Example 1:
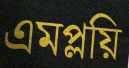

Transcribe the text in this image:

এমপ্লয়ি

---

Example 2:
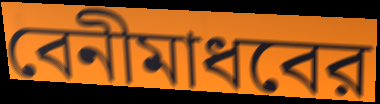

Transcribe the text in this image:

বেনীমাধবের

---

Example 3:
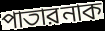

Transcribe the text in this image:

পাতারনাক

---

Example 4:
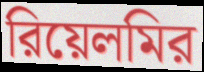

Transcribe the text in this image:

রিয়েলমির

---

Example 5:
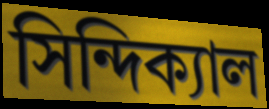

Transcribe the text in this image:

সিন্দিক্যাল